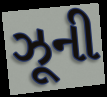
ઝૂની